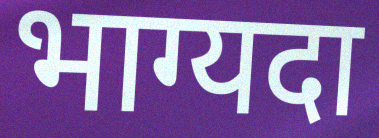
भाग्यदा